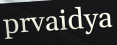
prvaidya